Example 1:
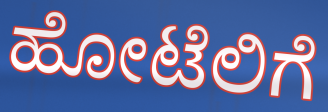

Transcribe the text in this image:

ಹೋಟೆಲಿಗೆ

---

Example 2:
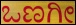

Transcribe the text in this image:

ಒಣಗೀ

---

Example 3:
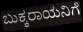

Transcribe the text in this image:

ಬುಕ್ಕರಾಯನಿಗೆ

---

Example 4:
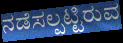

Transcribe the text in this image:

ನಡೆಸಲ್ಪಟ್ಟಿರುವ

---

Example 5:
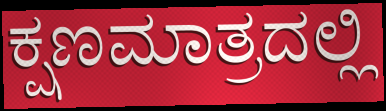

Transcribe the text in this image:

ಕ್ಷಣಮಾತ್ರದಲ್ಲಿ